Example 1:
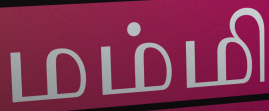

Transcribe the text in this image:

மம்மி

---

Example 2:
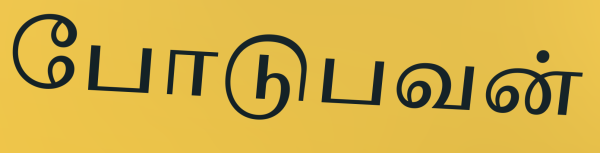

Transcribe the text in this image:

போடுபவன்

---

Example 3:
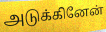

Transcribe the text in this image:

அடுக்கினேன்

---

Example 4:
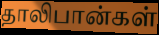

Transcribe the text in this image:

தாலிபான்கள்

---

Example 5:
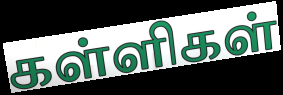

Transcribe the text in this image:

கள்ளிகள்